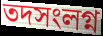
তদসংলগ্ন